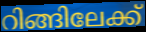
റിങ്ങിലേക്ക്